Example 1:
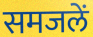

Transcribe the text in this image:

समजलें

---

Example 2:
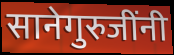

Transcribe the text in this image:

सानेगुरुजींनी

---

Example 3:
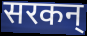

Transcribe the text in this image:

सरकन्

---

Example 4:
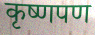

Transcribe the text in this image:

कृष्णपण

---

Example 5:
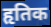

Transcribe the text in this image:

हृतिक